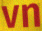
vn